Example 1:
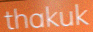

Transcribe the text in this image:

thakuk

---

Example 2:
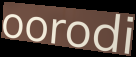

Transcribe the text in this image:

oorodi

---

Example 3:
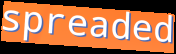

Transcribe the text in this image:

spreaded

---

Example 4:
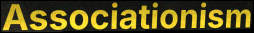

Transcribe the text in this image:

Associationism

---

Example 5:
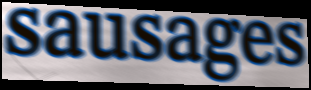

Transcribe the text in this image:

sausages